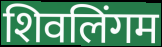
शिवलिंगम